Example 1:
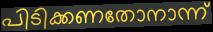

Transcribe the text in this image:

പിടിക്കണതോനാന്ന്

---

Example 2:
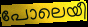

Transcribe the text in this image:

പോലെയീ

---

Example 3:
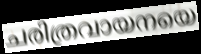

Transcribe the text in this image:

ചരിത്രവായനയെ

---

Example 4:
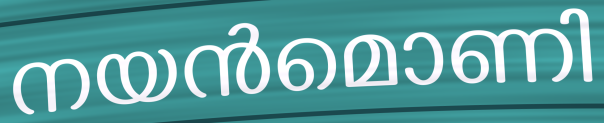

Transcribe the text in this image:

നയൻമൊണി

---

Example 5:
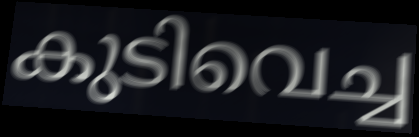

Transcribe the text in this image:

കുടിവെച്ച